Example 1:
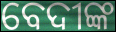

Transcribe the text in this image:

ବେଦୀଙ୍କ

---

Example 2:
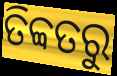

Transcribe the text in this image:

ତିବ୍ବତରୁ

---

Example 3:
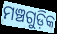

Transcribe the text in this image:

ମଞ୍ଚଗୁଡ଼ିକ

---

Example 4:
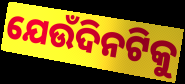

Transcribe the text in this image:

ଯେଉଁଦିନଟିକୁ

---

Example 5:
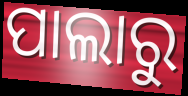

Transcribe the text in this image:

ପାଲାରୁ